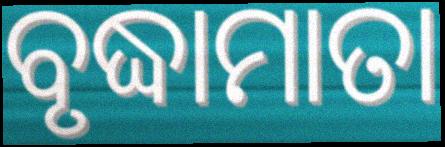
ବୃଦ୍ଧାମାତା